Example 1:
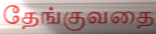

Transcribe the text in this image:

தேங்குவதை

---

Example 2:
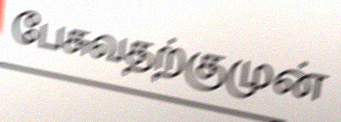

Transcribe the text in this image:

பேசுவதற்குமுன்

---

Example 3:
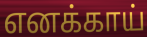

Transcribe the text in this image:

எனக்காய்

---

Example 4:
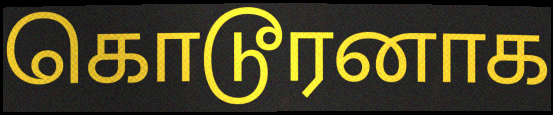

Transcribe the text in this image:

கொடூரனாக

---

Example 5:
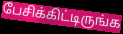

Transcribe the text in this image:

பேசிக்கிட்டிருங்க